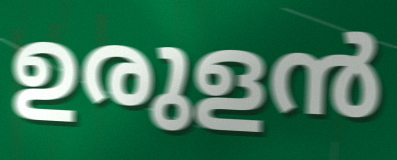
ഉരുളൻ